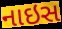
નાઇસ